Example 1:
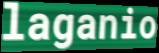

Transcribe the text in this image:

laganio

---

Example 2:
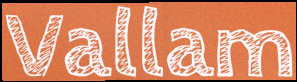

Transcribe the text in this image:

Vallam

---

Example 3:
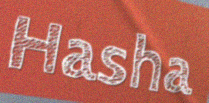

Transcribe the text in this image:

Hasha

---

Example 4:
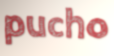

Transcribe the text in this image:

pucho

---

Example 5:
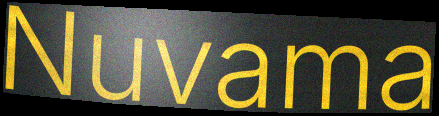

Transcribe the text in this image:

Nuvama